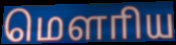
மெளரிய